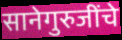
सानेगुरुजींचे